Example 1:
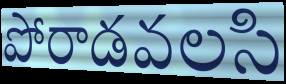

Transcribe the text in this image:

పోరాడవలసి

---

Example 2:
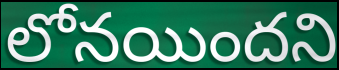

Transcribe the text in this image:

లోనయిందని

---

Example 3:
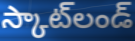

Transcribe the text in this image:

స్కాట్‌లండ్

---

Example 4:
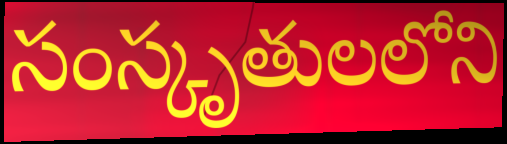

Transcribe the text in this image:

సంస్కృతులలోని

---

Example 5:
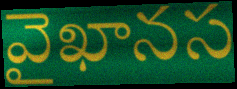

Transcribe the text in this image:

వైఖానస